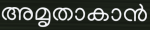
അമൃതാകാൻ